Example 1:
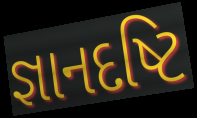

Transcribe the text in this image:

જ્ઞાનદષ્ટિ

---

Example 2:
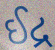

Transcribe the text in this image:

ઈદ્ર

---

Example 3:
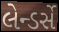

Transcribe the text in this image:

લેન્ડર્સે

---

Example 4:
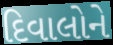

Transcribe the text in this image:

દિવાલોને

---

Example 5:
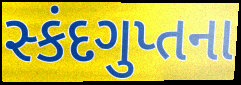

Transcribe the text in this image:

સ્કંદગુપ્તના